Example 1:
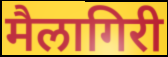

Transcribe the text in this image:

मैलागिरी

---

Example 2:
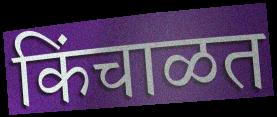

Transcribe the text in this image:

किंचाळत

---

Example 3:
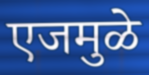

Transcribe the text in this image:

एजमुळे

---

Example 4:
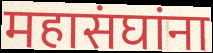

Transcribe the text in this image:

महासंघांना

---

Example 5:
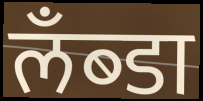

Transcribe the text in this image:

लँब्डा